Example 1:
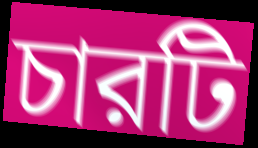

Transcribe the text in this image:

চারটি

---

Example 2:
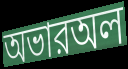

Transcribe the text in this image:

অভারঅল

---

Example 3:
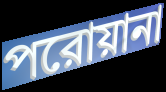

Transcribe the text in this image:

পরোয়ানা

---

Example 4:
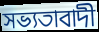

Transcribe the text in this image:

সভ্যতাবাদী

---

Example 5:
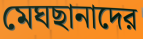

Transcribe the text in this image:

মেঘছানাদের